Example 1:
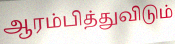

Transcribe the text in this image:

ஆரம்பித்துவிடும்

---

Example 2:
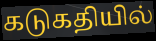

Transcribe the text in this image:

கடுகதியில்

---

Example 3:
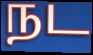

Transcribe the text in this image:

நட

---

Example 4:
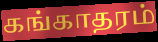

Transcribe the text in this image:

கங்காதரம்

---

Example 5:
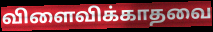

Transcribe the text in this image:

விளைவிக்காதவை